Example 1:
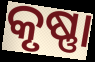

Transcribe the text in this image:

କୃଷ୍ଣା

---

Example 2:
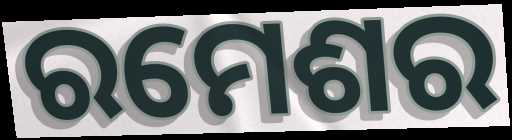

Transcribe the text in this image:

ରମେଶର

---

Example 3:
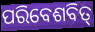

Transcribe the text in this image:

ପରିବେଶବିତ୍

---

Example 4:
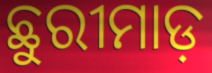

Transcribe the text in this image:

ଛୁରୀମାଡ଼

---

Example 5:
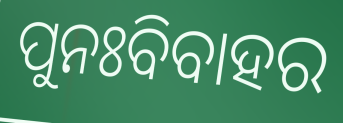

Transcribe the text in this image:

ପୁନଃବିବାହର